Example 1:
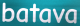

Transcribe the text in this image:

batava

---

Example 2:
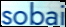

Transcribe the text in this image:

sobai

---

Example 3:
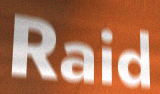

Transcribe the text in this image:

Raid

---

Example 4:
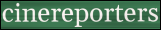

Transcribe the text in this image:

cinereporters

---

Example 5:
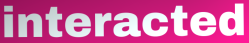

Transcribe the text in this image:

interacted